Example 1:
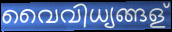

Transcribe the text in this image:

വൈവിധ്യങ്ങള്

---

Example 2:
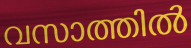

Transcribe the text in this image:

വസാത്തിൽ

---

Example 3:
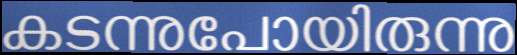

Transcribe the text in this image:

കടന്നുപോയിരുന്നു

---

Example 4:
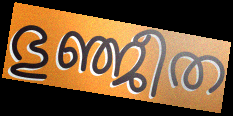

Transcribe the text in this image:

ഭുഞ്ജീത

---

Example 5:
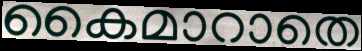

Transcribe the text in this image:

കൈമാറാതെ